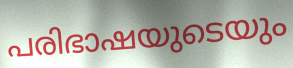
പരിഭാഷയുടെയും